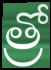
త్రో